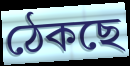
ঠেকছে